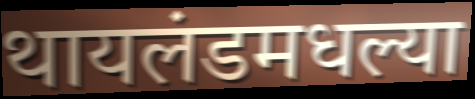
थायलंडमधल्या